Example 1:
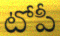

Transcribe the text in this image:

టోపీ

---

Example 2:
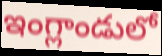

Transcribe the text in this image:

ఇంగ్లాండులో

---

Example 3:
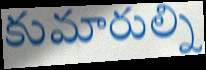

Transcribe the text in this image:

కుమారుల్ని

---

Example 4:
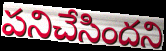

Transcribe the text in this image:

పనిచేసిందని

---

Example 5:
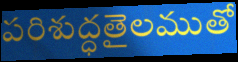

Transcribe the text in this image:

పరిశుద్ధతైలముతో